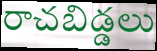
రాచబిడ్డలు